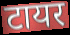
टायर